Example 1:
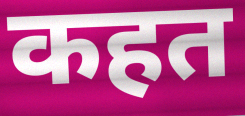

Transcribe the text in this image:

कहत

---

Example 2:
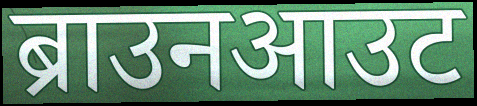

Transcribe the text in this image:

ब्राउनआउट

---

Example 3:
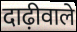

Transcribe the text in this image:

दाढ़ीवाले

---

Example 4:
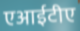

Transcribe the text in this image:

एआईटीए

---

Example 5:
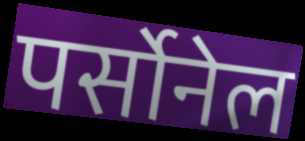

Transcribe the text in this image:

पर्सोनेल